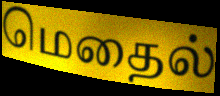
மெதைல்